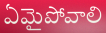
ఏమైపోవాలి